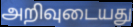
அறிவுடையது